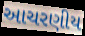
આચરણીય